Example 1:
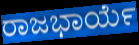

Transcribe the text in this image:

ರಾಜಭಾರ್ಯೆ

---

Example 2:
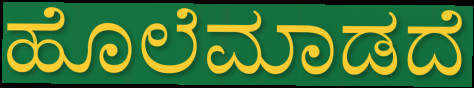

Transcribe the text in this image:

ಹೊಲೆಮಾಡದೆ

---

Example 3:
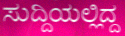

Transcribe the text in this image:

ಸುದ್ದಿಯಲ್ಲಿದ್ದ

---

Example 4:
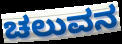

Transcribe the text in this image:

ಚಲುವನ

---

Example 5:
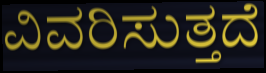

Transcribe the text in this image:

ವಿವರಿಸುತ್ತದೆ